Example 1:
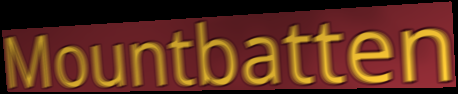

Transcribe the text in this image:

Mountbatten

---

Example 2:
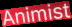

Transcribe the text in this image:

Animist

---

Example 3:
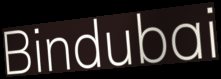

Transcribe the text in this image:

Bindubai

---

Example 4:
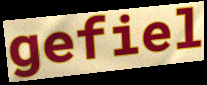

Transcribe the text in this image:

gefiel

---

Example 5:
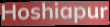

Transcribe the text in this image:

Hoshiapur